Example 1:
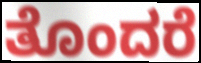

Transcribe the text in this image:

ತೊಂದರೆ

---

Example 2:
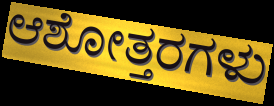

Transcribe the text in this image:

ಆಶೋತ್ತರಗಳು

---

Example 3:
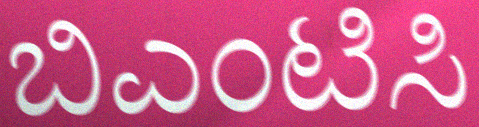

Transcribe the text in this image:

ಬಿಎಂಟಿಸಿ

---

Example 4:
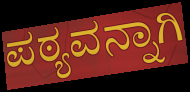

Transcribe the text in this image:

ಪಠ್ಯವನ್ನಾಗಿ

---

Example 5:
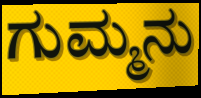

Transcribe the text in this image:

ಗುಮ್ಮನು